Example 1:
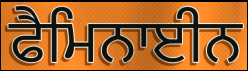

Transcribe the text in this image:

ਫੈਮਿਨਾਈਨ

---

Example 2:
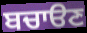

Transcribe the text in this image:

ਬਚਾੳਣ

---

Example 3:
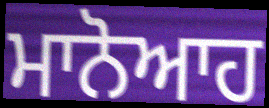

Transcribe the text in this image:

ਮਾਨੋਆਹ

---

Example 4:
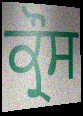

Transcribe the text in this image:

ਕ੍ਰੌਸ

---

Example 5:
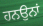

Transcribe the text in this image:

ਹਨਉਨਾਂ